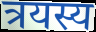
त्रयस्य